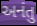
અનંતુ